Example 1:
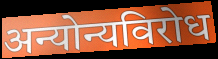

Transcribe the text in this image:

अन्योन्यविरोध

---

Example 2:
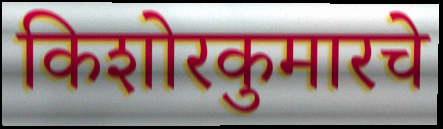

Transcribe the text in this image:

किशोरकुमारचे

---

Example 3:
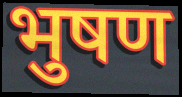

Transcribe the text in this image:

भुषण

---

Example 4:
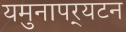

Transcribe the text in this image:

यमुनापर्यटन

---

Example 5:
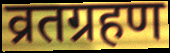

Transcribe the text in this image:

व्रतग्रहण